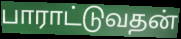
பாராட்டுவதன்